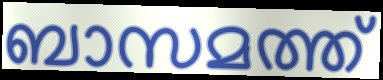
ബാസമത്ത്